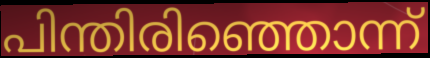
പിന്തിരിഞ്ഞൊന്ന്